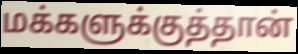
மக்களுக்குத்தான்